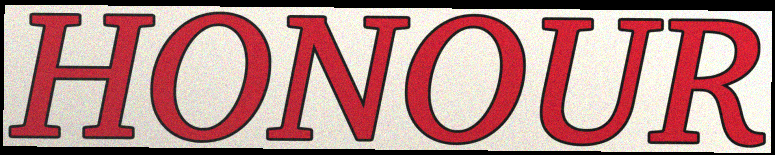
HONOUR